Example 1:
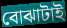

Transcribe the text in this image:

বোঝাটাই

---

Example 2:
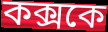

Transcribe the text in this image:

কক্সকে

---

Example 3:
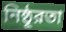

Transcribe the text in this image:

নিষ্ঠূরতা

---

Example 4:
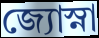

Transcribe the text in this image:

জ্যোস্না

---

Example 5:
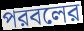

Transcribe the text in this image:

পরবলের